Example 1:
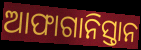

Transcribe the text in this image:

ଆଫାଗାନିସ୍ତାନ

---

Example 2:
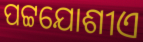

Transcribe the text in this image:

ପଟ୍ଟଯୋଶୀଏ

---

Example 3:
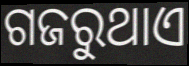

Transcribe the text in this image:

ଗଜରୁଥାଏ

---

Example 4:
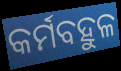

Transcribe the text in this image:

କର୍ମବହୁଳ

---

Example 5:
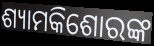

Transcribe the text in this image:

ଶ୍ୟାମକିଶୋରଙ୍କ